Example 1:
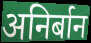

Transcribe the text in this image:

अनिर्बान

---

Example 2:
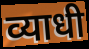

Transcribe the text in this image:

व्याधी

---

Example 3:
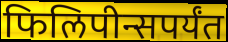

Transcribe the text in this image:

फिलिपीन्सपर्यंत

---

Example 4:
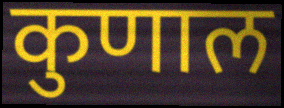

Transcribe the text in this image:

कुणाल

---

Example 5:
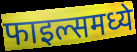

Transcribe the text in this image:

फाइल्समध्ये